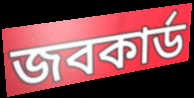
জবকার্ড